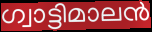
ഗ്വാട്ടിമാലൻ